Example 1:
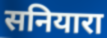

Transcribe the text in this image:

सनियारा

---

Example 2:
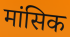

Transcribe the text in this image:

मांसिक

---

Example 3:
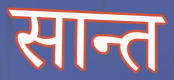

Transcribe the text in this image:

सान्त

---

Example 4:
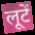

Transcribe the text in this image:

लूटें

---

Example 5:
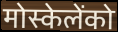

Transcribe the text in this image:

मोस्केलेंको